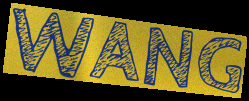
WANG